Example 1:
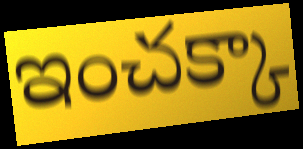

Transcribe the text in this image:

ఇంచక్కా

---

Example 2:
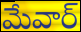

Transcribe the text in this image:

మేవార్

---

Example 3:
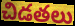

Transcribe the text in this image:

చిడతలు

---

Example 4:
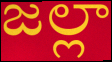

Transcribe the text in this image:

జల్లా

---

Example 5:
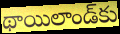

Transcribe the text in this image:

థాయిలాండ్‌కు